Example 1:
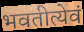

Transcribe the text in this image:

भवतीत्येवं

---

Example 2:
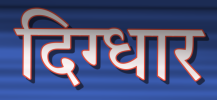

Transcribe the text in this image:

दिग्धार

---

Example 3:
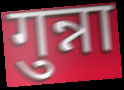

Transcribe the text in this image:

गुन्ना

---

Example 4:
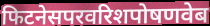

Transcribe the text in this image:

फिटनेसपरवरिशपोषणवेब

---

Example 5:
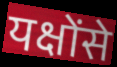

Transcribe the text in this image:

यक्षोंसे